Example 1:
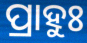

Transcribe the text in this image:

ପ୍ରାହୁଃ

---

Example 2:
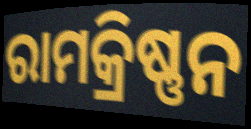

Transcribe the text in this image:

ରାମକ୍ରିଷ୍ଣନ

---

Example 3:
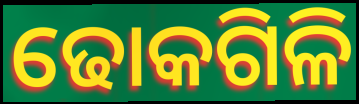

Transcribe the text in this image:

ଢୋକଗିଳି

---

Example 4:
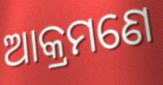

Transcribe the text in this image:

ଆକ୍ରମଣେ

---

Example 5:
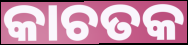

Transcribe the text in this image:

କାଚତକ